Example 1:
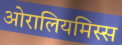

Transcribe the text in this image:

ओरालियमिस्स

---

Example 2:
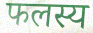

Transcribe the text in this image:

फलस्य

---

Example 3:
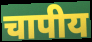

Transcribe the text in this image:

चापीय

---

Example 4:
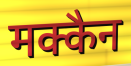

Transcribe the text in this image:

मक्कैन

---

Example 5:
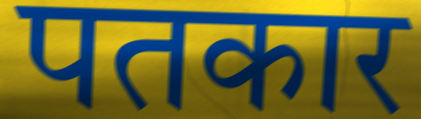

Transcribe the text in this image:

पतकार